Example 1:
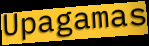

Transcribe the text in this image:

Upagamas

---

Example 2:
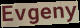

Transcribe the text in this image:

Evgeny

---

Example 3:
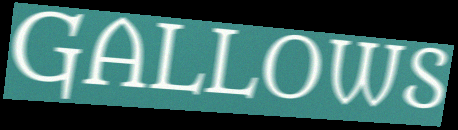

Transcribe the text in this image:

GALLOWS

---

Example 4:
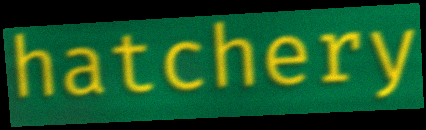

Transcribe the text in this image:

hatchery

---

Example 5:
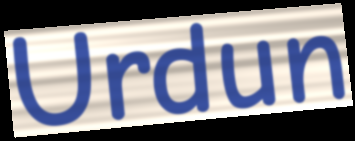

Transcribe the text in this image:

Urdun